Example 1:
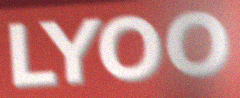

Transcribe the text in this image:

LYOO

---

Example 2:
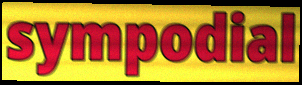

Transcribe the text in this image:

sympodial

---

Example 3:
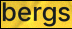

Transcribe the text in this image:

bergs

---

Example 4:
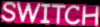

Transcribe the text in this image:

SWITCH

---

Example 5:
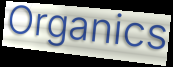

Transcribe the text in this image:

Organics